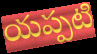
యప్పటి